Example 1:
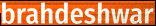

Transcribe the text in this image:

brahdeshwar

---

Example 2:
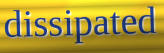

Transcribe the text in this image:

dissipated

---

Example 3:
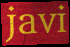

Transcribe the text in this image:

javi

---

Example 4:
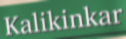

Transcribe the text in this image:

Kalikinkar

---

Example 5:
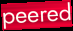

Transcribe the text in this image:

peered